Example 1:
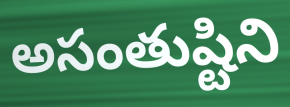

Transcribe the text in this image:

అసంతుష్టిని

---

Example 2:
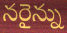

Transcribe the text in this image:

నరైన్ను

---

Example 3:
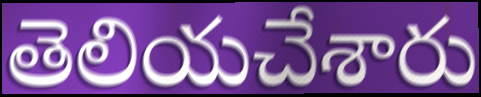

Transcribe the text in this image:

తెలియచేశారు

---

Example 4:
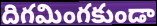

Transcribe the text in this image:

దిగమింగకుండా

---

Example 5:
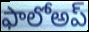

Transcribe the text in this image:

ఫాలోఅప్